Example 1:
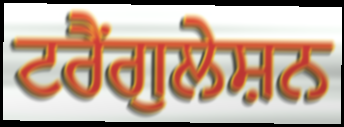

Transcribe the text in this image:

ਟਰੈਂਗੁਲੇਸ਼ਨ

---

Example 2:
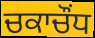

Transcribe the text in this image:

ਚਕਾਚੌਂਧ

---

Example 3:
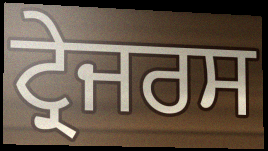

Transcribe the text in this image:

ਟ੍ਰੇਜਰਸ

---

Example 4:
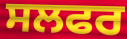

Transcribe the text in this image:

ਸਲਫਰ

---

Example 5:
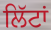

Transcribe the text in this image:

ਲਿੱਟਾਂ